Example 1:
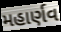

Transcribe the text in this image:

મહાર્ણવ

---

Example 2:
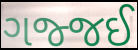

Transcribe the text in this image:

ગજ્જઈ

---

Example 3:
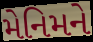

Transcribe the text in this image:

મેનિમને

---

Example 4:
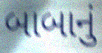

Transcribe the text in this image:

બાબાનું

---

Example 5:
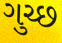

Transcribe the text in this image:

ગુચ્છ